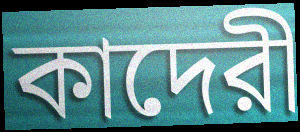
কাদেরী